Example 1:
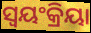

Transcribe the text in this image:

ସ୍ବୟଂକ୍ରିୟା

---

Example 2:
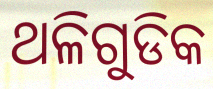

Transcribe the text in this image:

ଥଳିଗୁଡିକ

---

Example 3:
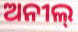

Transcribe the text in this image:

ଅନୀଲ୍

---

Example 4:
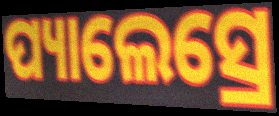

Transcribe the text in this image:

ପ୍ୟାଲେସ୍ରେ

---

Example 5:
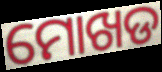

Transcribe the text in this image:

ମୋଖଡ